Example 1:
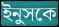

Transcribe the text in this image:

ইনুসকে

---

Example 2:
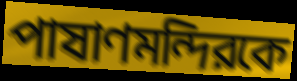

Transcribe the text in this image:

পাষাণমন্দিরকে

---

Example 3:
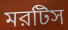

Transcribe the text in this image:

মরটিস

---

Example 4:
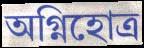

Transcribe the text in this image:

অগ্নিহোত্র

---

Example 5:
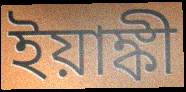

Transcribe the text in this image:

ইয়াঙ্কী